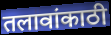
तलावांकाठी